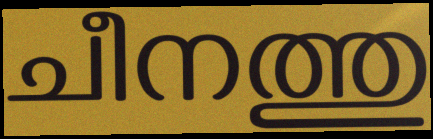
ചീനത്തു